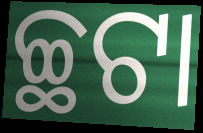
ଚ୍ଛଟା